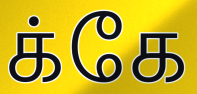
க்கே